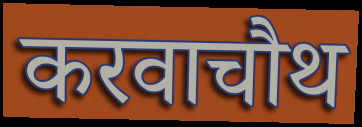
करवाचौथ